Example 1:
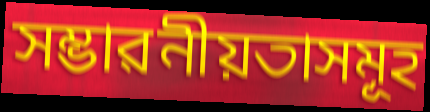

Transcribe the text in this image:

সম্ভাৱনীয়তাসমূহ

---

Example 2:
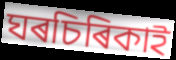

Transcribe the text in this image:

ঘৰচিৰিকাই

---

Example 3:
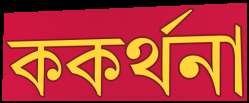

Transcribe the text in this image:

ককৰ্থনা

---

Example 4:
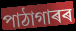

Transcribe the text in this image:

পাঠাগাৰৰ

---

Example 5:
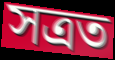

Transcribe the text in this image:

সত্ৰত